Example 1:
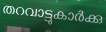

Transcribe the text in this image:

തറവാട്ടുകാർക്കു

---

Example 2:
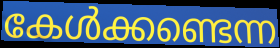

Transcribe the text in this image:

കേൾക്കണ്ടെന്ന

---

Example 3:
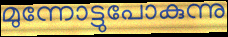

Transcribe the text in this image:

മുന്നോട്ടുപോകുന്നു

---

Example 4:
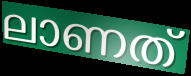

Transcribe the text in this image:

ലാണത്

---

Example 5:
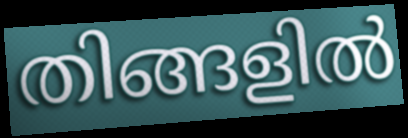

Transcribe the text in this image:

തിങ്ങളിൽ